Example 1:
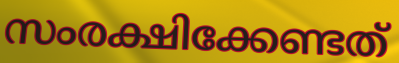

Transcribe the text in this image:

സംരക്ഷിക്കേണ്ടത്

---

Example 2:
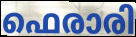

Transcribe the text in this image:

ഫെരാരി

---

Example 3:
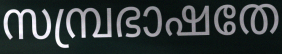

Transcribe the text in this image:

സമ്പ്രഭാഷതേ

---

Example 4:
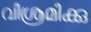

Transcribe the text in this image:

വിശ്രമിക്കു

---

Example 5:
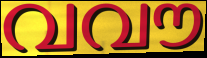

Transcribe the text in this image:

വവൗ